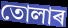
তোলাৰ